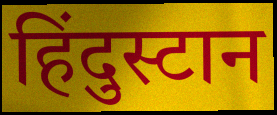
हिंदुस्टान